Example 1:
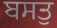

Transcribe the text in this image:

ਬਸਤੁ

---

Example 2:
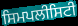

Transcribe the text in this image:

ਸਿਮਪਲੀਸਿਟੀ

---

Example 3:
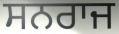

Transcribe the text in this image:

ਸਨਰਾਜ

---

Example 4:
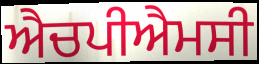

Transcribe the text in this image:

ਐਚਪੀਐਮਸੀ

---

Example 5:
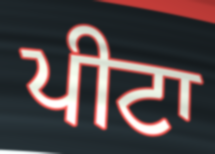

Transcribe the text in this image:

ਪੀਟਾ